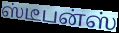
ஸ்டீபன்ஸ்